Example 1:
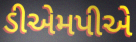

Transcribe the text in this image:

ડીએમપીએ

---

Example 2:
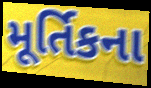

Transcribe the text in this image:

મૂર્તિકના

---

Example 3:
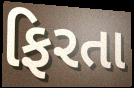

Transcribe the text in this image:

ફિરતા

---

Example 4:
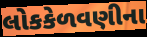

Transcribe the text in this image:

લોકકેળવણીના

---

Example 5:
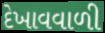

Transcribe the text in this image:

દેખાવવાળી